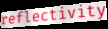
reflectivity